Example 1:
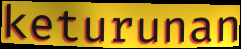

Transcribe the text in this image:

keturunan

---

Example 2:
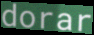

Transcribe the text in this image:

dorar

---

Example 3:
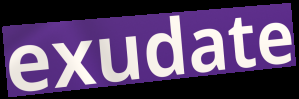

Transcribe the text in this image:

exudate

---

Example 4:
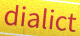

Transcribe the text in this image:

dialict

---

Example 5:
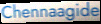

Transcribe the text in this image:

Chennaagide